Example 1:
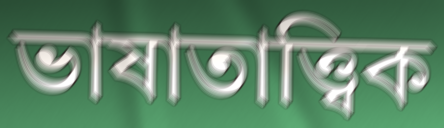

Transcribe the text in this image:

ভাষাতাত্ত্বিক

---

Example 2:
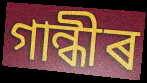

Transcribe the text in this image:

গান্ধীৰ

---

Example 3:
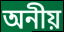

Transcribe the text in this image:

অনীয়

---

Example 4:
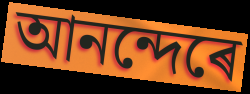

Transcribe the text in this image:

আনন্দেৰে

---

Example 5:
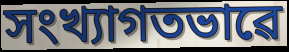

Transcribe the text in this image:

সংখ্যাগতভাৱে